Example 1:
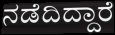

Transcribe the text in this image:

ನಡೆದಿದ್ದಾರೆ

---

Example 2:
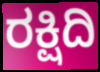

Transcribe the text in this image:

ರಕ್ಷಿದಿ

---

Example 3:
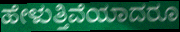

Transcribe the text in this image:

ಹೇಳುತ್ತಿವೆಯಾದರೂ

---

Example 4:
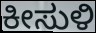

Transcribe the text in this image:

ಕೀಸುಳಿ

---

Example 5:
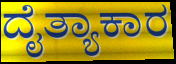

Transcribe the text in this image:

ದೈತ್ಯಾಕಾರ